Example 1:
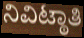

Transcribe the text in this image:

ನಿವಿಟ್ಠಾತಿ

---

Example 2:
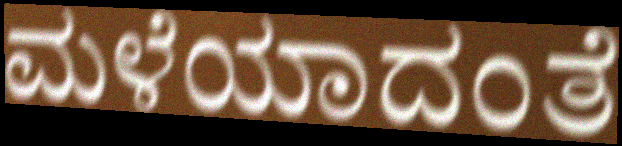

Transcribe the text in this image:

ಮಳೆಯಾದಂತೆ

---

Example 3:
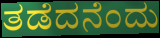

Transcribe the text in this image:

ತಡೆದನೆಂದು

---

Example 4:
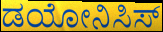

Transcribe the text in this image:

ಡಯೋನಿಸಿಸ್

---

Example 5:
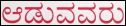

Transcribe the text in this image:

ಆಡುವವರು